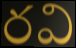
రవి